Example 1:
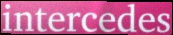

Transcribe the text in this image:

intercedes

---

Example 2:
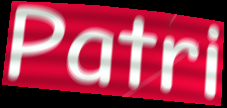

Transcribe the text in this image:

Patri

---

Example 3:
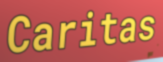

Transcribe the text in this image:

Caritas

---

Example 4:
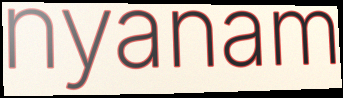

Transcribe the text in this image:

nyanam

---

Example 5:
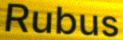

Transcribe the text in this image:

Rubus